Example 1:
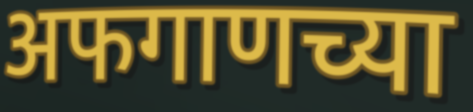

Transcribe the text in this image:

अफगाणच्या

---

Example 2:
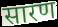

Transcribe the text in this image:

सारण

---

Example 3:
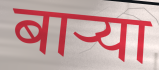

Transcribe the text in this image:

बाऱ्या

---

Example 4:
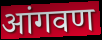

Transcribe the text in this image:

आंगवण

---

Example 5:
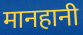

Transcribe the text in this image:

मानहानी